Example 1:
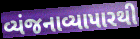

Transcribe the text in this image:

વ્યંજનાવ્યાપારથી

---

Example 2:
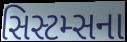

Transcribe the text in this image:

સિસ્ટમ્સના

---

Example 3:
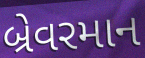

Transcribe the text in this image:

બ્રેવરમાન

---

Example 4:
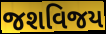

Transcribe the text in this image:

જશવિજય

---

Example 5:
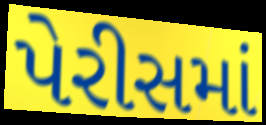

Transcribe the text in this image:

પેરીસમાં